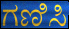
ಗಣಿಸಿ